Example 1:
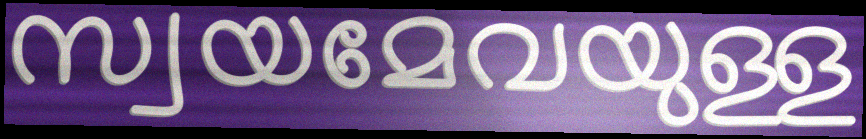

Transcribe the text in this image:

സ്വയമേവയുള്ള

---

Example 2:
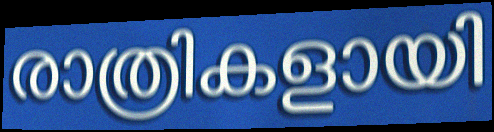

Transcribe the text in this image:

രാത്രികളായി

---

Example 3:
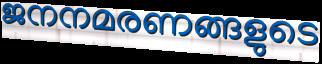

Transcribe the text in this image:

ജനനമരണങ്ങളുടെ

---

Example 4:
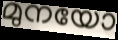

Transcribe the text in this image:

മുനയോ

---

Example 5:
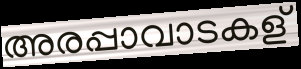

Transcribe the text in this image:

അരപ്പാവാടകള്